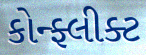
કોન્ફ્લીક્ટ